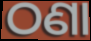
ଠଣା